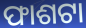
ଫାଶଟା